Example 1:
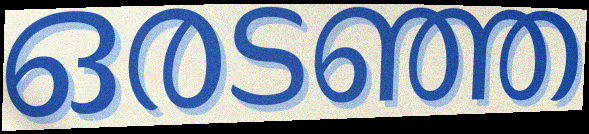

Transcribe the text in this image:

ഒരടഞ്ഞ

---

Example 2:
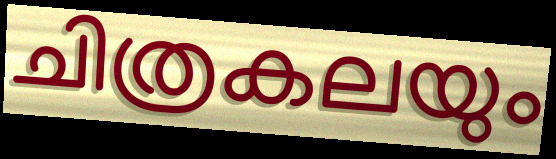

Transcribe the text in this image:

ചിത്രകലയും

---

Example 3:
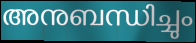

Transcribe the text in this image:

അനുബന്ധിച്ചും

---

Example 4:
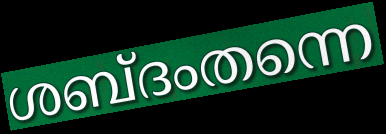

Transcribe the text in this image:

ശബ്ദംതന്നെ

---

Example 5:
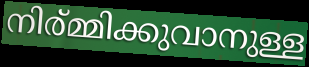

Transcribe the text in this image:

നിര്മ്മിക്കുവാനുള്ള